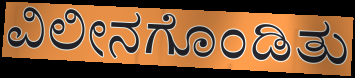
ವಿಲೀನಗೊಂಡಿತು